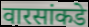
वारसांकडे